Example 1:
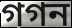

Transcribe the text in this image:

গগন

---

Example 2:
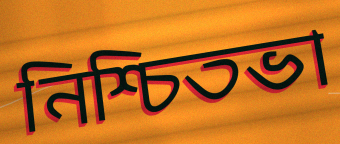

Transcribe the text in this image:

নিশ্চিতভা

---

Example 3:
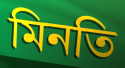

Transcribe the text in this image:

মিনতি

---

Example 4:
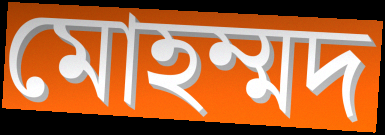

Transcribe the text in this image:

মোহম্মদ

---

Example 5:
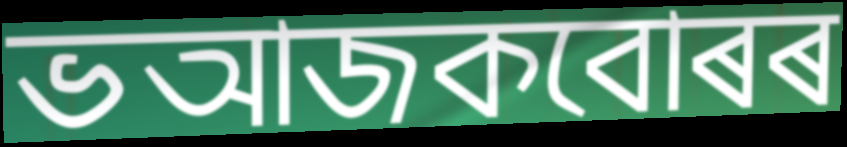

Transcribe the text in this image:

ভআজকবোৰৰ